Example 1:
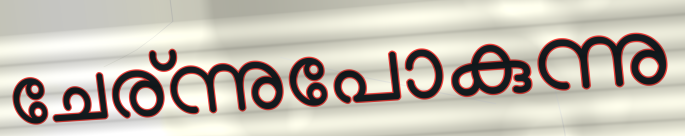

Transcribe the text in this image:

ചേര്ന്നുപോകുന്നു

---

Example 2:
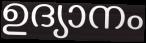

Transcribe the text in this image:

ഉദ്യാനം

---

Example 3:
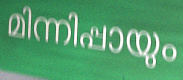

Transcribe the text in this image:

മിന്നിപ്പായും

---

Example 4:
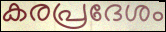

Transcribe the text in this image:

കരപ്രദേശം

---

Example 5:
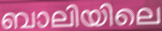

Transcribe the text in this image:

ബാലിയിലെ